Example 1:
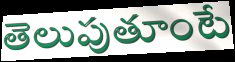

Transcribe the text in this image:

తెలుపుతూంటే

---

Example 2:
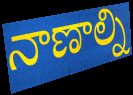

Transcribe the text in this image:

నాణాల్ని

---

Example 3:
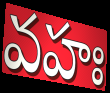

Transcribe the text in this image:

వహః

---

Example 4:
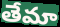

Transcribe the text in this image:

తేమా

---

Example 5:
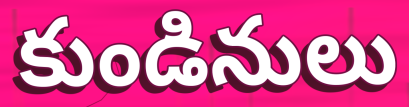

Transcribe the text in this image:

కుండినులు